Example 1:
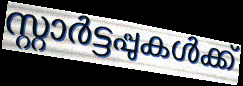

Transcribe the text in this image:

സ്റ്റാർട്ടപ്പുകൾക്ക്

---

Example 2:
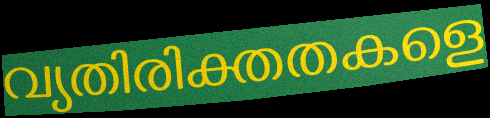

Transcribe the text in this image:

വ്യതിരിക്തതകളെ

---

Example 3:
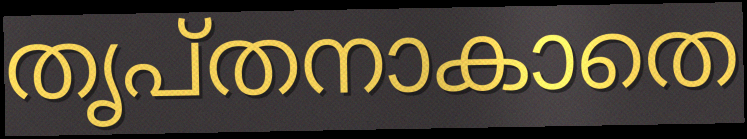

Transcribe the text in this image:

തൃപ്തനാകാതെ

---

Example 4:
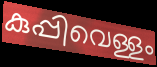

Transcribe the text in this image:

കുപ്പിവെള്ളം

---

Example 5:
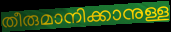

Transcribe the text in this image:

തീരുമാനിക്കാനുള്ള